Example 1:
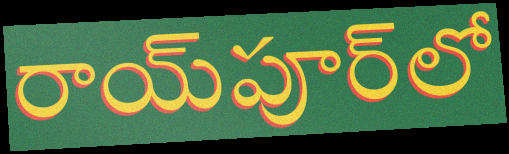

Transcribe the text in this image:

రాయ్‌పూర్‌లో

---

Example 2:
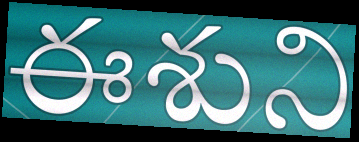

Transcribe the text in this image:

ఈశుని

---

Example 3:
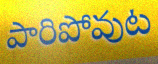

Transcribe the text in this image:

పారిపోవుట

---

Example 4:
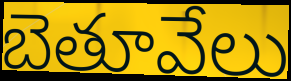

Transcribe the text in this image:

బెతూవేలు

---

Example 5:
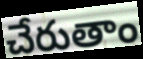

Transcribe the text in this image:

చేరుతాం